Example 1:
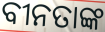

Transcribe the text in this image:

ବୀନତାଙ୍କ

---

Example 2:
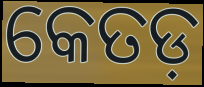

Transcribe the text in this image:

କେତଡ଼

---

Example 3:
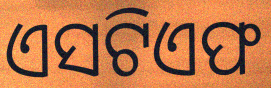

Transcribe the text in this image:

ଏସଟିଏଫ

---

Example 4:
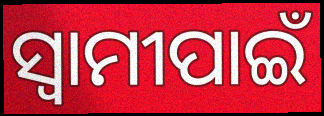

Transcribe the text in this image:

ସ୍ୱାମୀପାଇଁ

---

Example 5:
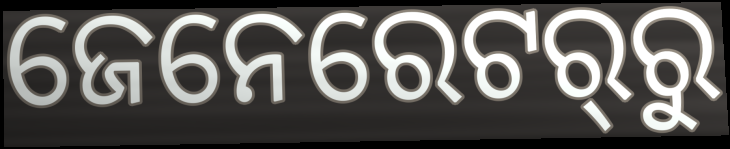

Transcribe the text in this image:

ଜେନେରେଟର୍‌ରୁ